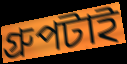
গ্রুপটাই